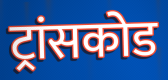
ट्रांसकोड